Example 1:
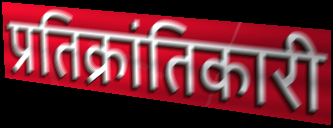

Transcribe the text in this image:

प्रतिक्रांतिकारी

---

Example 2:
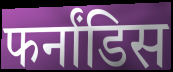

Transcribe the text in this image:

फर्नांडिस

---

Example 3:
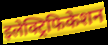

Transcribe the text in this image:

इलेक्ट्रिफिकेशन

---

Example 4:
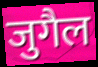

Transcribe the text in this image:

जुगैल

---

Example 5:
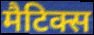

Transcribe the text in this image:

मैटिक्स